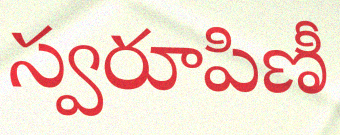
స్వరూపిణీ